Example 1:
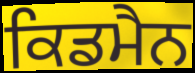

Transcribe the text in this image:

ਕਿਡਮੈਨ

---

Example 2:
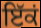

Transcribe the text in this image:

ਇੱਕਂ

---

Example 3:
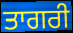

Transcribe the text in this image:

ਤਾਗਰੀ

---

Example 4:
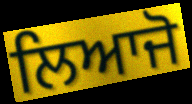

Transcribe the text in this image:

ਲਿਆਜੋ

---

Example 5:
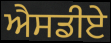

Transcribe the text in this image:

ਐਸਡੀਏ